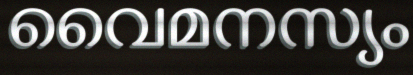
വൈമനസ്യം